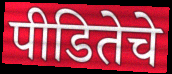
पीडितेचे